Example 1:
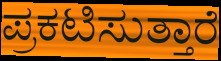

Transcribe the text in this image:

ಪ್ರಕಟಿಸುತ್ತಾರೆ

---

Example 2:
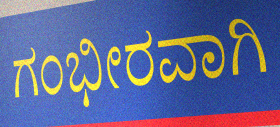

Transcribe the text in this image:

ಗಂಭೀರವಾಗಿ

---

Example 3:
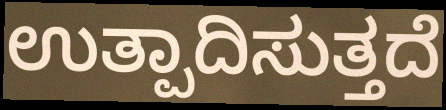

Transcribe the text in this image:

ಉತ್ಪಾದಿಸುತ್ತದೆ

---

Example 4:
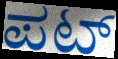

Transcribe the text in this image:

ಪಟ್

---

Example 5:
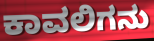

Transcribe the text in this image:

ಕಾವಲಿಗನು